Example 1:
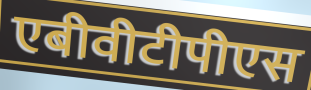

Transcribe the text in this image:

एबीवीटीपीएस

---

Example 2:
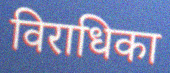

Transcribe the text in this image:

विराधिका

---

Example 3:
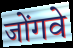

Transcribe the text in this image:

जोंगवे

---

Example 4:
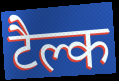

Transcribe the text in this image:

टैल्क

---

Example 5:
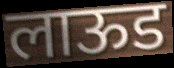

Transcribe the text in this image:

लाऊड